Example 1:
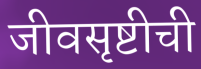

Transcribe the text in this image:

जीवसृष्टीची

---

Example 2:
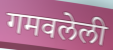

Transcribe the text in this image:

गमवलेली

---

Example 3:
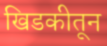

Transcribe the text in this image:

खिडकीतून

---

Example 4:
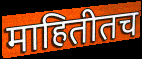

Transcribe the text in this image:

माहितीतच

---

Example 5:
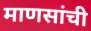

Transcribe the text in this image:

माणसांची